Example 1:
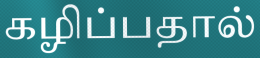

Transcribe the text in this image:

கழிப்பதால்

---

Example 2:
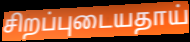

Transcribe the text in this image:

சிறப்புடையதாய்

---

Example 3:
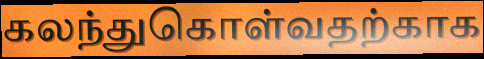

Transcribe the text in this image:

கலந்துகொள்வதற்காக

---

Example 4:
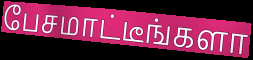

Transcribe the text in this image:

பேசமாட்டீங்களா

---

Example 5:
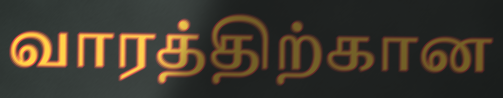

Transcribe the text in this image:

வாரத்திற்கான